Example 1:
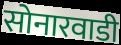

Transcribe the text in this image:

सोनारवाडी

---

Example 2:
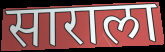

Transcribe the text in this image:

साराला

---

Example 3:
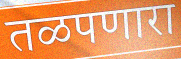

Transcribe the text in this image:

तळपणारा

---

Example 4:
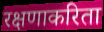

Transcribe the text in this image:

रक्षणाकरिता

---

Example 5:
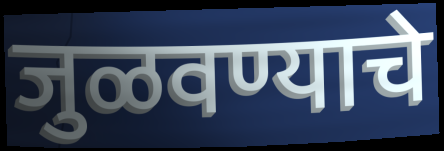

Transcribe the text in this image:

जुळवण्याचे